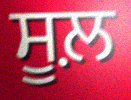
ਸੂਲ਼